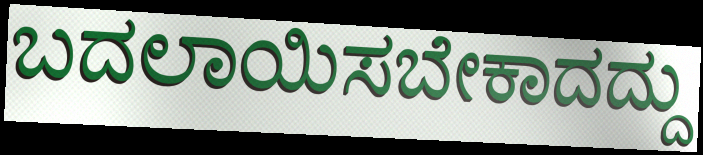
ಬದಲಾಯಿಸಬೇಕಾದದ್ದು